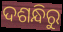
ଦଶନ୍ଧିରୁ